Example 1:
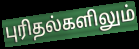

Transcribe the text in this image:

புரிதல்களிலும்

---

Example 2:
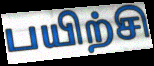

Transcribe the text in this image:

பயிற்சி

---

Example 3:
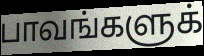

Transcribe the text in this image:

பாவங்களுக்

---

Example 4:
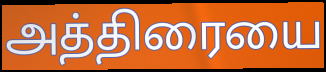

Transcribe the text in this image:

அத்திரையை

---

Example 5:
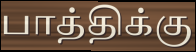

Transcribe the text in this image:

பாத்திக்கு